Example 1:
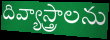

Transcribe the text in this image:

దివ్యాస్త్రాలను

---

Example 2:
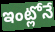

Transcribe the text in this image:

ఇంట్లోనే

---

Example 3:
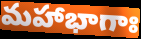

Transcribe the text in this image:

మహాభాగాః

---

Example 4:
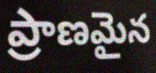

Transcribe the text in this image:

ప్రాణమైన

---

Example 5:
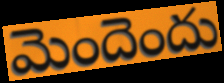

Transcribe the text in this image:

మెందెందు